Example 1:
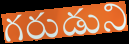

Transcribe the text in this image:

గరుడుని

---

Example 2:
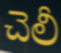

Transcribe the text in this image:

చెలీ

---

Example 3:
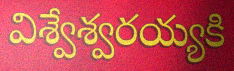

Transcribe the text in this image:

విశ్వేశ్వరయ్యకి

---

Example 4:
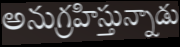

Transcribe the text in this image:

అనుగ్రహిస్తున్నాడు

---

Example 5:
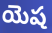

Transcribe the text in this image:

యెష